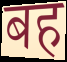
बह